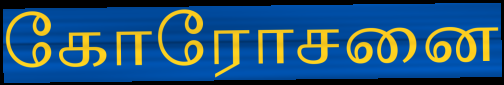
கோரோசனை